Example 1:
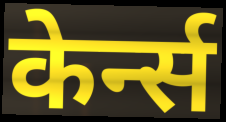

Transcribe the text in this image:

केर्न्स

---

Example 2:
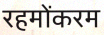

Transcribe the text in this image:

रहमोंकरम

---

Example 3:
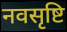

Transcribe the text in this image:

नवसृष्टि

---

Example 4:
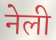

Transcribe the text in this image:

नेली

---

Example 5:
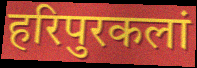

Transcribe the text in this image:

हरिपुरकलां